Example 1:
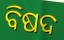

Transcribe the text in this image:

ବିଷଦ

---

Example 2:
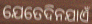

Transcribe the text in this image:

ଯେତେଦିନଯାଏଁ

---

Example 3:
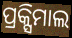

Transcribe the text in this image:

ପ୍ରକ୍ସିମାଲ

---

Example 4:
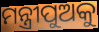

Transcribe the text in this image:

ମନ୍ତ୍ରୀପୁଅକୁ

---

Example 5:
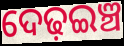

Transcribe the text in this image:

ଦେଢ଼ଇଞ୍ଚ